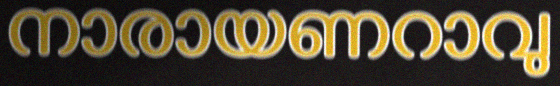
നാരായണറാവു